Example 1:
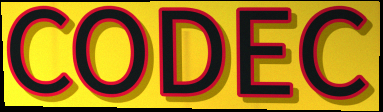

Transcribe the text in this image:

CODEC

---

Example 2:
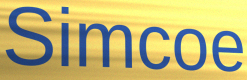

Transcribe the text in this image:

Simcoe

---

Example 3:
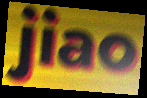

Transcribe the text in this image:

jiao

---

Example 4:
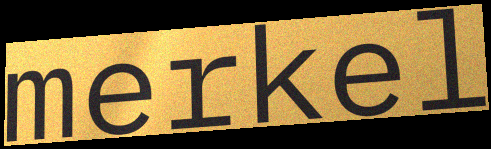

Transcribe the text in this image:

merkel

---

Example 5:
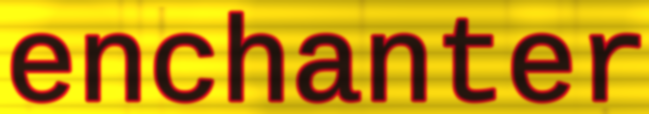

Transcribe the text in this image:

enchanter